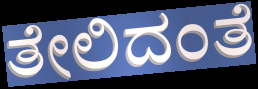
ತೇಲಿದಂತೆ